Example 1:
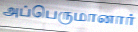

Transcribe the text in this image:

அப்பெருமானார்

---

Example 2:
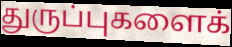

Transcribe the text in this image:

துருப்புகளைக்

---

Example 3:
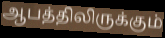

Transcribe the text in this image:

ஆபத்திலிருக்கும்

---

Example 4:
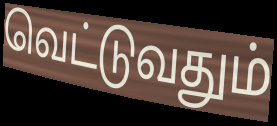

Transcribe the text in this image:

வெட்டுவதும்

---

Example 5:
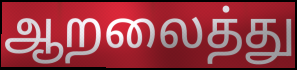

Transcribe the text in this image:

ஆறலைத்து